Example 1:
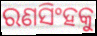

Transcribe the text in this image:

ରଣସିଂହକୁ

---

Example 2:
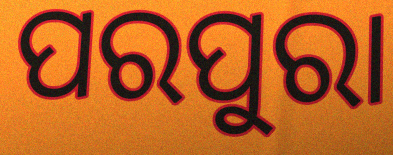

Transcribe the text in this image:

ପରପୁରା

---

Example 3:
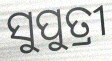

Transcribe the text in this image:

ସୁପୁତ୍ରୀ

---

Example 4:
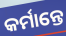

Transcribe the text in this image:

କର୍ମାନ୍ତେ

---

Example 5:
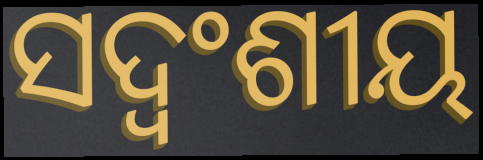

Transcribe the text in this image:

ସଦ୍ବଂଶୀୟ